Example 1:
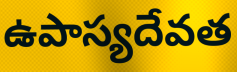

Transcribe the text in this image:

ఉపాస్యదేవత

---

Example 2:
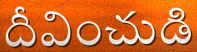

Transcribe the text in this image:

దీవించుడి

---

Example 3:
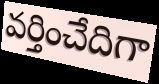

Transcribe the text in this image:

వర్తించేదిగా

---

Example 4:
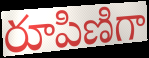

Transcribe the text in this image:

రూపిణిగా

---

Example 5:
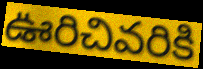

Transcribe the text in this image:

ఊరిచివరికి